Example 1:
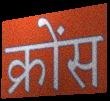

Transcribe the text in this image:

क्रोंस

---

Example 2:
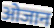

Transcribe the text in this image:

ओजान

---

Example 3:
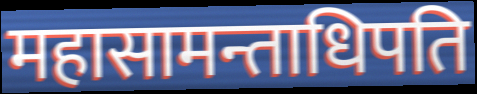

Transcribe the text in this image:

महासामन्ताधिपति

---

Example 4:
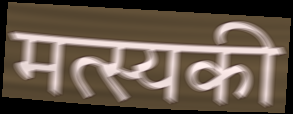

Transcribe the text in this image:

मत्स्यकी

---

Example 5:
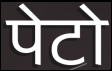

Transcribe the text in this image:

पेटो